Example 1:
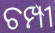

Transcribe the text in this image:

ଚମ୍ପୀ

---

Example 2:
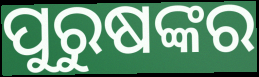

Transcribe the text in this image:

ପୁରୁଷଙ୍କର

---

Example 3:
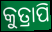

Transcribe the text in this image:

କୁତ୍ରାପି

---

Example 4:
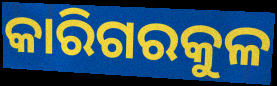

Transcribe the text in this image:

କାରିଗରକୁଳ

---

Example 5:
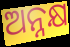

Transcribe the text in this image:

ଅନ୍ନକ୍ଷ